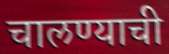
चालण्याची